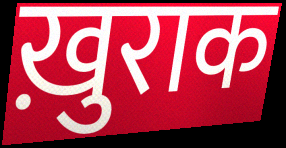
ख़ुराक